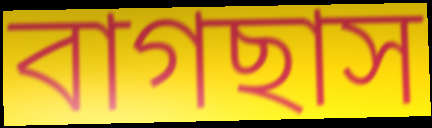
বাগছাস